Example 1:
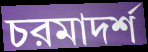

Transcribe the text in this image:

চরমাদর্শ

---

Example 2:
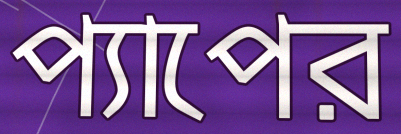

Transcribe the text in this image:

প্যাপের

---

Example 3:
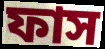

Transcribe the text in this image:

ফাস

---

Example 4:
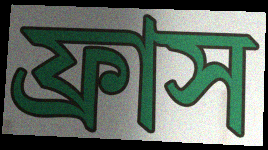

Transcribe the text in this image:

ফ্রাস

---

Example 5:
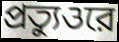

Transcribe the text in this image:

প্রত্যুওরে